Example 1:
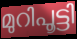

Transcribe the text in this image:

മുറിപൂട്ടി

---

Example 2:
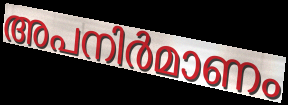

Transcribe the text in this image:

അപനിർമാണം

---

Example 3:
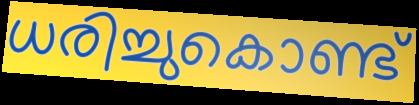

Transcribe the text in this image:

ധരിച്ചുകൊണ്ട്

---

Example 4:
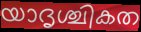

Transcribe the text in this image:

യാദൃശ്ചികത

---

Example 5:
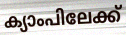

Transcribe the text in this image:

ക്യാംപിലേക്ക്